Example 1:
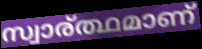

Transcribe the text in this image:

സ്വാര്ത്ഥമാണ്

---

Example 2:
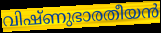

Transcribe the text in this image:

വിഷ്ണുഭാരതീയൻ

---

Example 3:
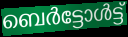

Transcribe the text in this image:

ബെർട്ടോൾട്ട്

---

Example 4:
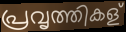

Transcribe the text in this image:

പ്രവൃത്തികള്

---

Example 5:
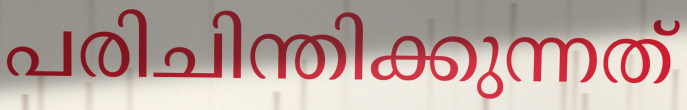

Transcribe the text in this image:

പരിചിന്തിക്കുന്നത്